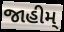
જાહીમ્